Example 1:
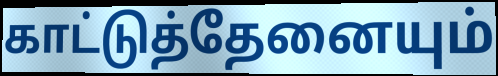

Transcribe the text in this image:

காட்டுத்தேனையும்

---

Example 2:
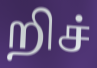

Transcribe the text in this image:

றிச்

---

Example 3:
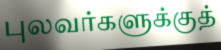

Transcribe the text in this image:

புலவர்களுக்குத்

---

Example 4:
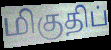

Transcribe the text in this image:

மிகுதிப்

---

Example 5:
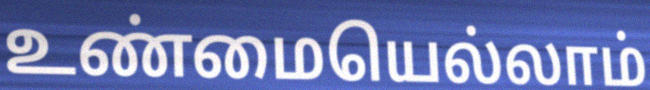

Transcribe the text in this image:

உண்மையெல்லாம்